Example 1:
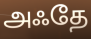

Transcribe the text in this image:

அஃதே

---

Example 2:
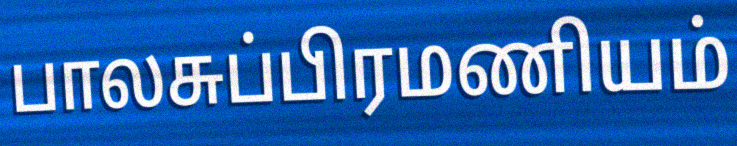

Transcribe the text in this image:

பாலசுப்பிரமணியம்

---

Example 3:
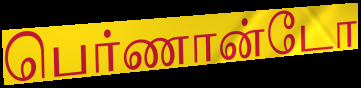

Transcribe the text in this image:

பெர்ணான்டோ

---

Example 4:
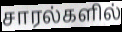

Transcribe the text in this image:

சாரல்களில்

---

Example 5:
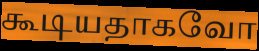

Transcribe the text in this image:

கூடியதாகவோ